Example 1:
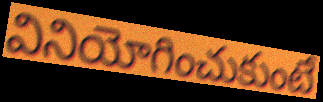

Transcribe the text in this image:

వినియోగించుకుంటే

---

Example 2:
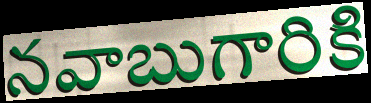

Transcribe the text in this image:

నవాబుగారికి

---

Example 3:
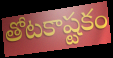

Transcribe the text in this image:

తోటకాష్టకం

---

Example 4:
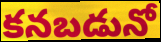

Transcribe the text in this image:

కనబడునో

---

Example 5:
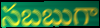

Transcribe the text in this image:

సబబుగా